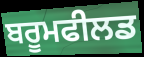
ਬਰੂਮਫੀਲਡ